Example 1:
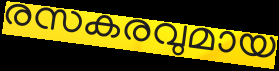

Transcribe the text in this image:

രസകരവുമായ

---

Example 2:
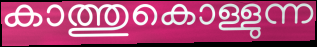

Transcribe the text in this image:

കാത്തുകൊള്ളുന്ന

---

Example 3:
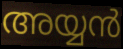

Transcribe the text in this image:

അയ്യൻ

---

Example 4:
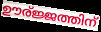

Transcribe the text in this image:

ഊര്ജ്ജത്തിന്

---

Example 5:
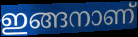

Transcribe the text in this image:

ഇങ്ങനാണ്